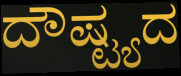
ದೌಷ್ಟ್ಯದ